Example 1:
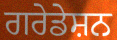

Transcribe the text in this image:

ਗਰੇਡੇਸ਼ਨ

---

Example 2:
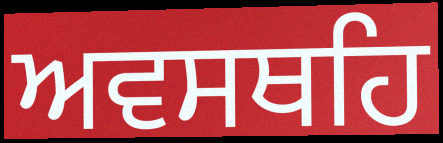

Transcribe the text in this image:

ਅਵਸਥਹਿ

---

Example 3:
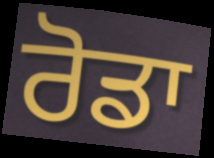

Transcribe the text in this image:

ਰੋਡਾ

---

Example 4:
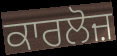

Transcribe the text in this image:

ਕਾਰਲੋਜ਼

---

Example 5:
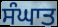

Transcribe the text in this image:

ਸੰਘਾਤ